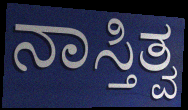
ನಾಸ್ತಿತ್ವ